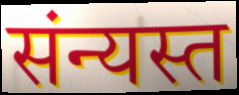
संन्यस्त